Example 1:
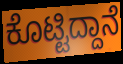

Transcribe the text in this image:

ಕೊಟ್ಟಿದ್ದಾನೆ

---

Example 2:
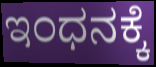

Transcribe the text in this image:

ಇಂಧನಕ್ಕೆ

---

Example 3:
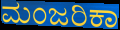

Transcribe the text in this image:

ಮಂಜರಿಕಾ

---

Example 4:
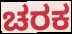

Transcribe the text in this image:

ಚರಕ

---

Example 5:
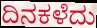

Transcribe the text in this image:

ದಿನಕಳೆದು